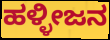
ಹಳ್ಳೀಜನ